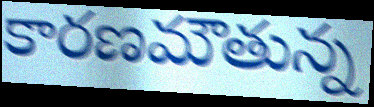
కారణమౌతున్న